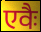
एवैः